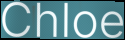
Chloe